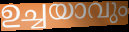
ഉച്ചയാവും